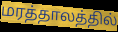
மரத்தாலத்தில்